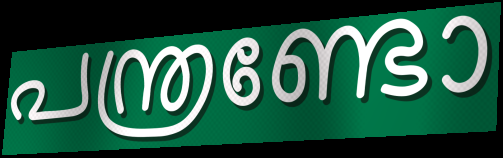
പന്ത്രണ്ടോ